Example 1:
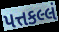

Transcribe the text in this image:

પત્તકલ્લં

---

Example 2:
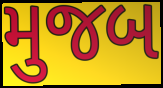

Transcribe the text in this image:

મુજબ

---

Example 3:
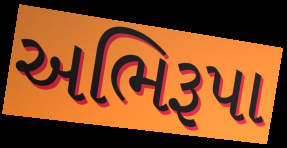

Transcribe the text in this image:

અભિરૂપા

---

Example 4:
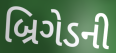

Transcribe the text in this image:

બ્રિગેડની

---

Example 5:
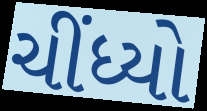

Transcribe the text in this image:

ચીંધ્યો